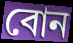
বোন